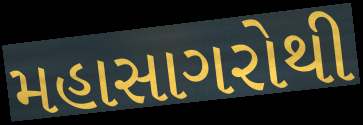
મહાસાગરોથી